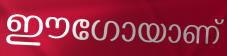
ഈഗോയാണ്